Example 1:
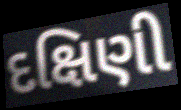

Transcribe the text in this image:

દક્ષિણી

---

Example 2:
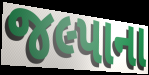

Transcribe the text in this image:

જલ્પાના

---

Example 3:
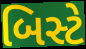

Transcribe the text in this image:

બિસ્ટે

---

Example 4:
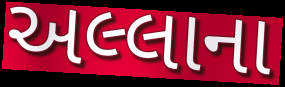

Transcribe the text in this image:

અલ્લાના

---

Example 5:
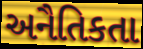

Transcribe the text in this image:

અનૈતિકતા